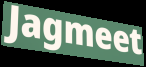
Jagmeet